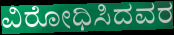
ವಿರೋಧಿಸಿದವರ